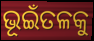
ଭୂଇଁତଳକୁ